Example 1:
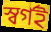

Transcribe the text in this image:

স্বৰ্গই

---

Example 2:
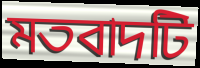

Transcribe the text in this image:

মতবাদটি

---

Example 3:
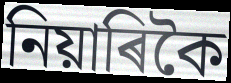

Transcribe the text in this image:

নিয়াৰিকৈ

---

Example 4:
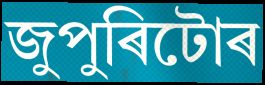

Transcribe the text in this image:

জুপুৰিটোৰ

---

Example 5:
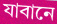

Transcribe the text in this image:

যাবানে